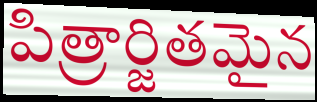
పిత్రార్జితమైన